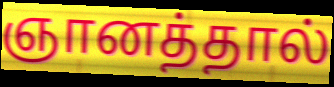
ஞானத்தால்